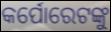
କର୍ପୋରେଟଙ୍କୁ